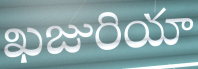
ఖజురియా